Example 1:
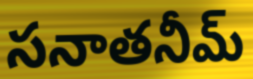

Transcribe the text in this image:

సనాతనీమ్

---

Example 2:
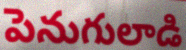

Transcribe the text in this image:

పెనుగులాడి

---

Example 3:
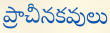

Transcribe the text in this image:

ప్రాచీనకవులు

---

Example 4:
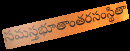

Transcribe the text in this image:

సమస్తభూతాంతరసంస్థితా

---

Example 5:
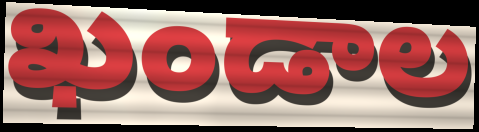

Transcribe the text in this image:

ఖండాల